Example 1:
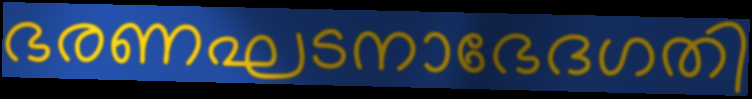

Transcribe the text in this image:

ഭരണഘടനാഭേദഗതി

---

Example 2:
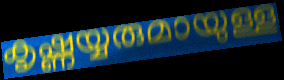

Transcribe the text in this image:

കൃഷ്ണയ്യരുമായുള്ള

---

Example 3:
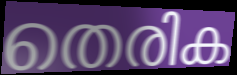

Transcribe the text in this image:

തെരിക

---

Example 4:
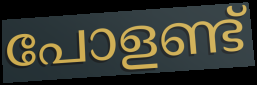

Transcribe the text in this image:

പോളണ്ട്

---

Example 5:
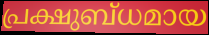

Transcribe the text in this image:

പ്രക്ഷുബ്ധമായ